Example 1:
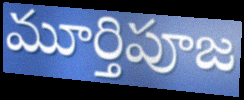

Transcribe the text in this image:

మూర్తిపూజ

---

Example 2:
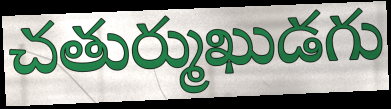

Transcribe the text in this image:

చతుర్ముఖుడగు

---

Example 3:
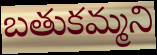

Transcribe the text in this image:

బతుకమ్మని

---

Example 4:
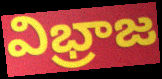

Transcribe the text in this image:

విభ్రాజ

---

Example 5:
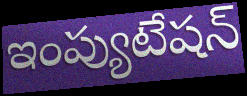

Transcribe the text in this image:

ఇంప్యుటేషన్